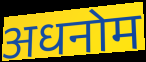
अधनोम